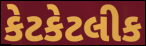
કેટકેટલીક